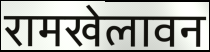
रामखेलावन